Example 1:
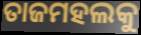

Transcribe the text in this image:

ତାଜମହଲକୁ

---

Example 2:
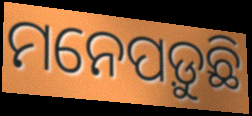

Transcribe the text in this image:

ମନେପଡ଼ୁଛି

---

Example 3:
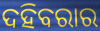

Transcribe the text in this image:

ଦହିବରାର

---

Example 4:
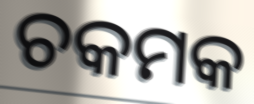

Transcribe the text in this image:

ଚକମକ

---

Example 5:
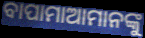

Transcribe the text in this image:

ବାପାମାଆମାନଙ୍କୁ